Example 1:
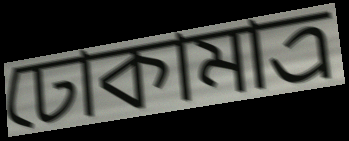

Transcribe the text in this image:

ঢোকামাত্র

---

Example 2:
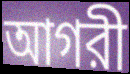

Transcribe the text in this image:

আগরী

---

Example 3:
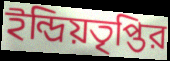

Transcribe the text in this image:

ইন্দ্রিয়তৃপ্তির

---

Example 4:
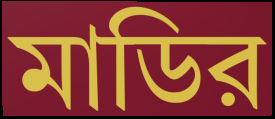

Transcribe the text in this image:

মাডির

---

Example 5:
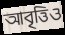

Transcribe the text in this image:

আবৃত্তিও